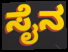
ಸೈನ